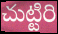
చుట్టిరి